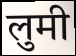
लुमी